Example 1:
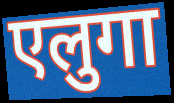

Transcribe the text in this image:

एलुगा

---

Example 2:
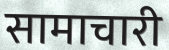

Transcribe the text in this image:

सामाचारी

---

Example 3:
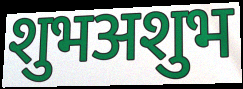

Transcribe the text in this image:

शुभअशुभ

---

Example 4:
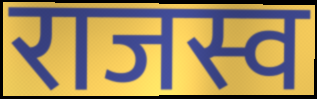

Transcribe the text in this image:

राजस्व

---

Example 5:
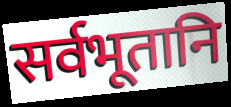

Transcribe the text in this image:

सर्वभूतानि